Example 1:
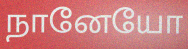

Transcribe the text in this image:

நானேயோ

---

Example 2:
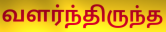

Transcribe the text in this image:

வளர்ந்திருந்த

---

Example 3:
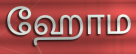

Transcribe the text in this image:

ஹோம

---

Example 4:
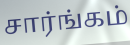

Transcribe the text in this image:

சார்ங்கம்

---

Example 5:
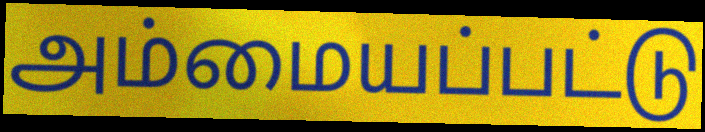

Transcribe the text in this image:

அம்மையப்பட்டு